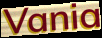
Vania